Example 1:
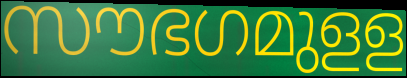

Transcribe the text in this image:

സൗഭഗമുളള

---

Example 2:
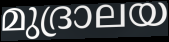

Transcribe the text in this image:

മുദ്രാലയ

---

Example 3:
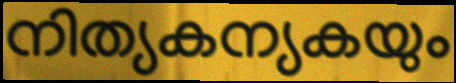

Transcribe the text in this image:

നിത്യകന്യകയും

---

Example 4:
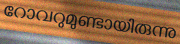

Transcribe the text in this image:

റോവറുമുണ്ടായിരുന്നു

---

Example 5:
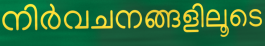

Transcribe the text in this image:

നിർവചനങ്ങളിലൂടെ